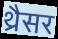
थ्रैसर